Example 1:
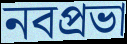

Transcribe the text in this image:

নবপ্রভা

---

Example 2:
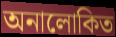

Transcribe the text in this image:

অনালোকিত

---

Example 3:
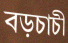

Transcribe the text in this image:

বড়চাচী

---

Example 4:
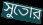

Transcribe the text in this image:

সুতোর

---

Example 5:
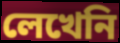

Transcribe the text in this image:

লেখেনি